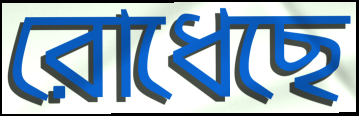
রোধেছে